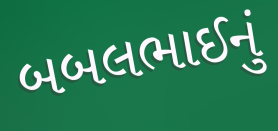
બબલભાઈનું